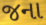
જના